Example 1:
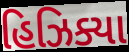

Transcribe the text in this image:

હિઝિક્યા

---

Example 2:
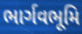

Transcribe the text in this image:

ભાર્ગવભૂમિ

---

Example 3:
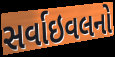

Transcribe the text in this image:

સર્વાઇવલનો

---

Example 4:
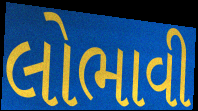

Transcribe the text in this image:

લોભાવી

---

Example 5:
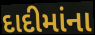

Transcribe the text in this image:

દાદીમાંના